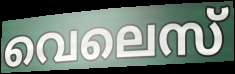
വെലെസ്